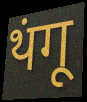
थंगू